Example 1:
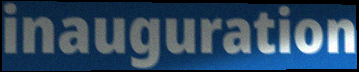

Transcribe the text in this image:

inauguration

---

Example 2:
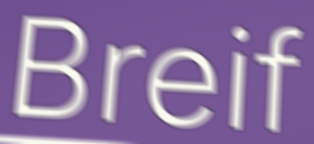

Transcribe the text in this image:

Breif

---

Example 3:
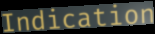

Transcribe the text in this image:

Indication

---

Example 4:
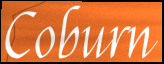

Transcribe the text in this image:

Coburn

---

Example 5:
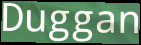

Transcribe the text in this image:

Duggan